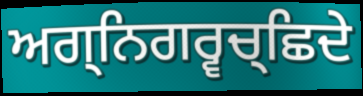
ਅਗ੍ਨਿਗਰ੍ਵਚ੍ਛਿਦੇ